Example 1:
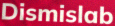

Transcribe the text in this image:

Dismislab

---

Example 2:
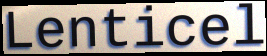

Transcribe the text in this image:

Lenticel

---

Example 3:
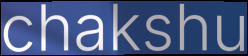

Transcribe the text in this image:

chakshu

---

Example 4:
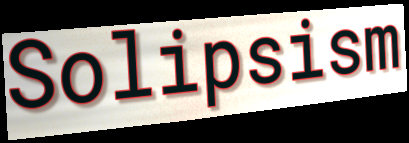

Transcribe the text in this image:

Solipsism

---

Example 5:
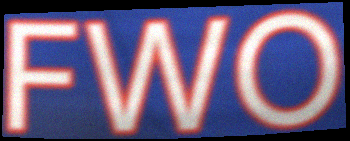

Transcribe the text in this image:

FWO